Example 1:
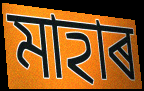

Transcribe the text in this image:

মাহাৰ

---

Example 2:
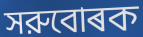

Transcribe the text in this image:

সৰুবোৰক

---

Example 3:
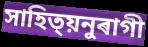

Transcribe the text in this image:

সাহিত্য়নুৰাগী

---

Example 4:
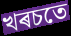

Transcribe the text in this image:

খৰচতে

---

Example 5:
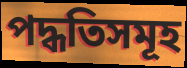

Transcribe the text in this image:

পদ্ধতিসমূহ